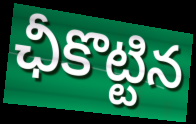
ఛీకొట్టిన